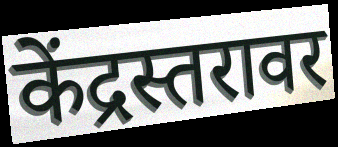
केंद्रस्तरावर